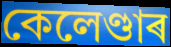
কেলেণ্ডাৰ